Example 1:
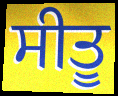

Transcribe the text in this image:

ਸੀਤੂ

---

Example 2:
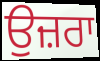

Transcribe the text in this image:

ਉਜ਼ਰਾ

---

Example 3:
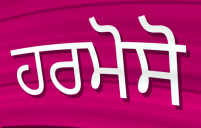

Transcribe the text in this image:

ਹਰਮੋਸੋ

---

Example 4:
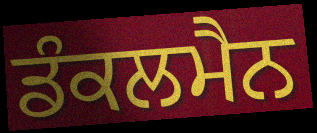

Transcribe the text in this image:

ਡੰਕਲਮੈਨ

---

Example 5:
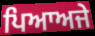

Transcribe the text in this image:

ਪਿਆਅਜੇ